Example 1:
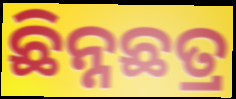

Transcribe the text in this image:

ଛିନ୍ନଛତ୍ର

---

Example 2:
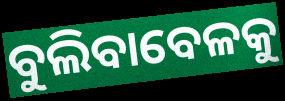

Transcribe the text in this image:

ବୁଲିବାବେଳକୁ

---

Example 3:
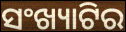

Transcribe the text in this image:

ସଂଖ୍ୟାଟିର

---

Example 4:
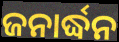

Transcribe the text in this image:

ଜନାର୍ଦ୍ଧନ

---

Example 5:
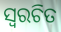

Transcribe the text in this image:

ସ୍ଵରଚିତ